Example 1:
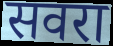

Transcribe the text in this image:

सवरा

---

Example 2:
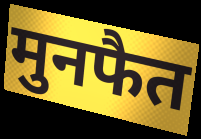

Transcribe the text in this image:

मुनफैत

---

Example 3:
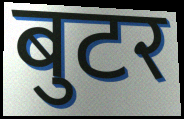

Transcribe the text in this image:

बुटर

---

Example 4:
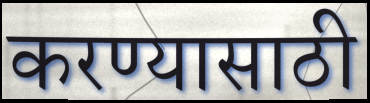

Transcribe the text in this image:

करण्यासाठी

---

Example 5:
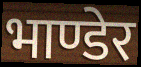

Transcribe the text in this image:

भाण्डेर